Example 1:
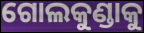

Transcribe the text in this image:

ଗୋଲକୁଣ୍ଡାକୁ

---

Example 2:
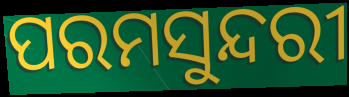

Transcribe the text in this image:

ପରମସୁନ୍ଦରୀ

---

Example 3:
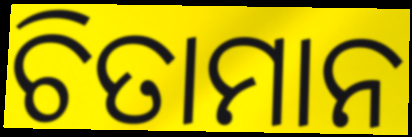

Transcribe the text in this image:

ଚିତାମାନ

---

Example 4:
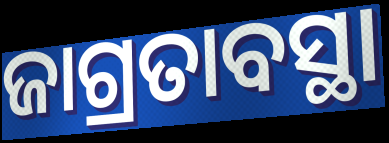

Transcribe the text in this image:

ଜାଗ୍ରତାବସ୍ଥା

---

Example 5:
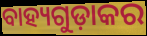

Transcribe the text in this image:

ବାହ୍ୟଗୁଡ଼ାକର